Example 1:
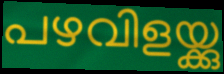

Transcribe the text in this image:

പഴവിളയ്ക്കു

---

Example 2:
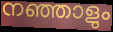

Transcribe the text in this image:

നഞ്ഞാളും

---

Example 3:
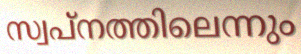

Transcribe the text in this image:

സ്വപ്നത്തിലെന്നും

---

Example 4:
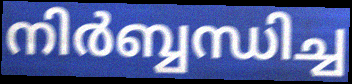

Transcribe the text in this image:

നിർബ്ബന്ധിച്ച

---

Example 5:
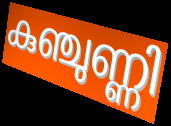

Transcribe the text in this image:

കുഞ്ചുണ്ണി